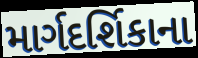
માર્ગદર્શિકાના